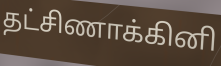
தட்சிணாக்கினி